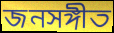
জনসঙ্গীত